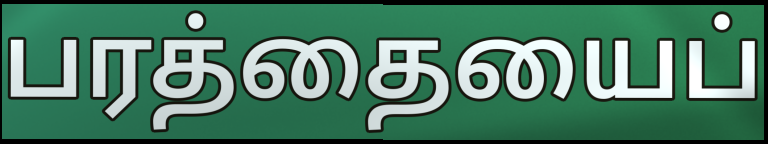
பரத்தையைப்